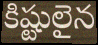
కిష్టులైన